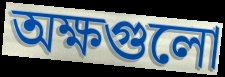
অক্ষগুলো